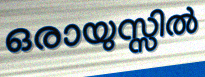
ഒരായുസ്സിൽ